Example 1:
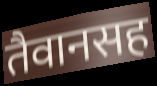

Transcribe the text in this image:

तैवानसह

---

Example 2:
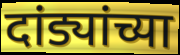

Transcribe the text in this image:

दांड्यांच्या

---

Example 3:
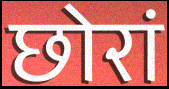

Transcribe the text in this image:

छोरां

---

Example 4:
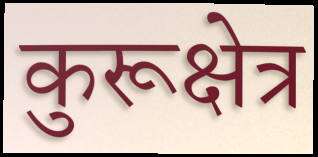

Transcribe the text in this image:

कुरूक्षेत्र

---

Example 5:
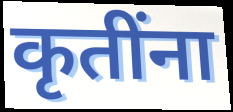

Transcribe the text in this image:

कृतींना